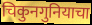
चिकुनगुनियाचा